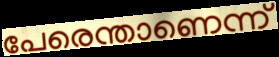
പേരെന്താണെന്ന്